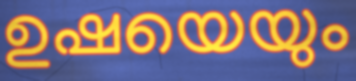
ഉഷയെയും